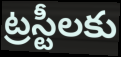
ట్రస్టీలకు